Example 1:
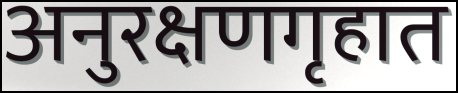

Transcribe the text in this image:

अनुरक्षणगृहात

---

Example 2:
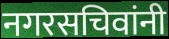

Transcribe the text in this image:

नगरसचिवांनी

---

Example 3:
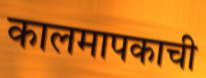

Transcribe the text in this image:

कालमापकाची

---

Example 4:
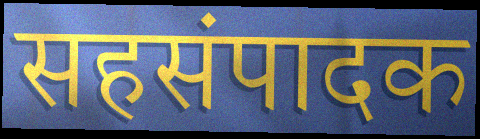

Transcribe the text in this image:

सहसंपादक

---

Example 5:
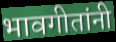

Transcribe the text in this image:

भावगीतांनी